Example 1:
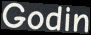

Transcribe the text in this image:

Godin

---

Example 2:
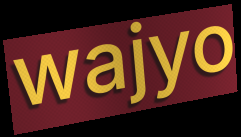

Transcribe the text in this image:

wajyo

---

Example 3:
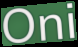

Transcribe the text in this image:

Oni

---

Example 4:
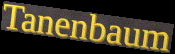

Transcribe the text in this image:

Tanenbaum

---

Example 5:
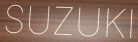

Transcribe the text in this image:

SUZUKI